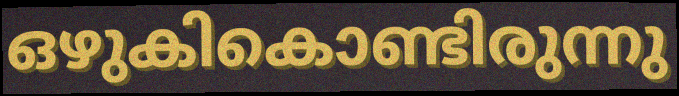
ഒഴുകികൊണ്ടിരുന്നു